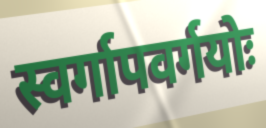
स्वर्गापवर्गयोः